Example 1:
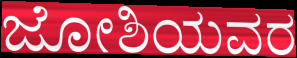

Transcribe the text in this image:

ಜೋಶಿಯವರ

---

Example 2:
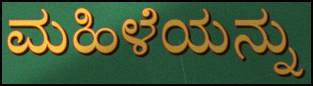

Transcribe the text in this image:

ಮಹಿಳೆಯನ್ನು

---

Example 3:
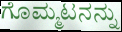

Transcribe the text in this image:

ಗೊಮ್ಮಟನನ್ನು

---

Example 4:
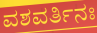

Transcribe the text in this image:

ವಶವರ್ತಿನಃ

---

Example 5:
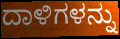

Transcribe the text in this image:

ದಾಳಿಗಳನ್ನು